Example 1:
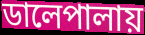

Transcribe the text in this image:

ডালেপালায়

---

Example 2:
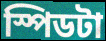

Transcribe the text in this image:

স্পিডটা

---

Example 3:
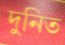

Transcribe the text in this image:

দুনিত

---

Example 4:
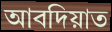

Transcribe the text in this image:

আবদিয়াত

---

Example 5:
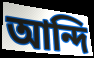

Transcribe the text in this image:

আন্দি